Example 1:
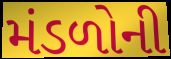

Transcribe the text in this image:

મંડળોની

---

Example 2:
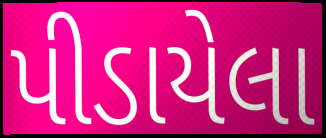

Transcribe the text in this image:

પીડાયેલા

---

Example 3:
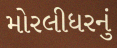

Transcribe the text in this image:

મોરલીધરનું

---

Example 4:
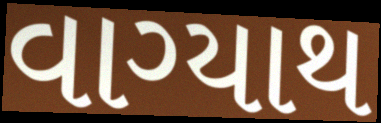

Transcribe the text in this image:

વાગ્યાથ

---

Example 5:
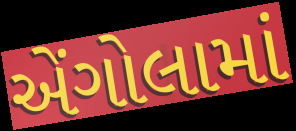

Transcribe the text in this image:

એંગોલામાં